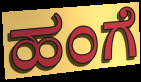
ಹಂಗೆ